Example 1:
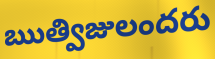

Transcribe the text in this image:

ఋత్విజులందరు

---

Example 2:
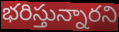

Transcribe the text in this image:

భరిస్తున్నారని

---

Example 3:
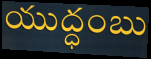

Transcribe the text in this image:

యుద్ధంబు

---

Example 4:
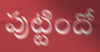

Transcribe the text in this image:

పుట్టిందో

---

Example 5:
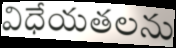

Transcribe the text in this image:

విధేయతలను